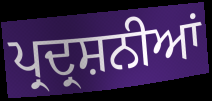
ਪ੍ਰਦ੍ਰਸ਼ਨੀਆਂ